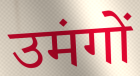
उमंगों